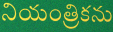
నియంత్రికను